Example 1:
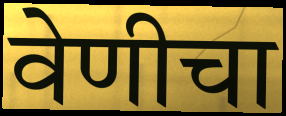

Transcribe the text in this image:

वेणीचा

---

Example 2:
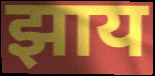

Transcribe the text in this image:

झाय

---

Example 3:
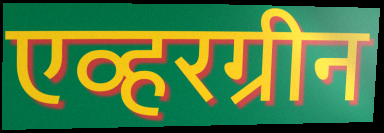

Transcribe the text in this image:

एव्हरग्रीन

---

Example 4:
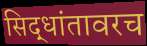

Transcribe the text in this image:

सिद्धांतावरच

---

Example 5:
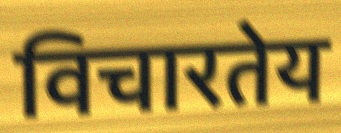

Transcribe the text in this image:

विचारतेय